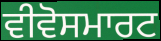
ਵੀਵੋਸਮਾਰਟ